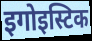
इगोइस्टिक